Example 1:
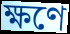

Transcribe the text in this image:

ক্ষণে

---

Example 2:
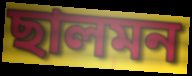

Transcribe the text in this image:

ছালমন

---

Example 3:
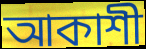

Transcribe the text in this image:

আকাশী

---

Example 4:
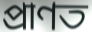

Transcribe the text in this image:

প্ৰাণত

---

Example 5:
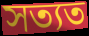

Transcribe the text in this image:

সত্যত